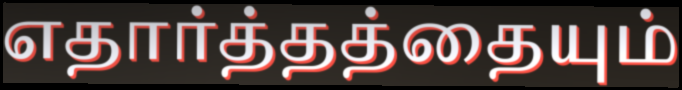
எதார்த்தத்தையும்